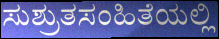
ಸುಶ್ರುತಸಂಹಿತೆಯಲ್ಲಿ